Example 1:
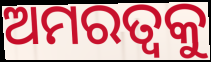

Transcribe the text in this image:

ଅମରତ୍ୱକୁ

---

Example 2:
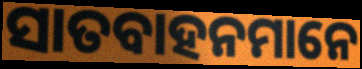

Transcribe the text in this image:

ସାତବାହନମାନେ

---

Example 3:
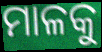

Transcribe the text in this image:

ମାଳକୁ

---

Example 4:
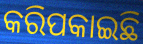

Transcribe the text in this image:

କରିପକାଇଛି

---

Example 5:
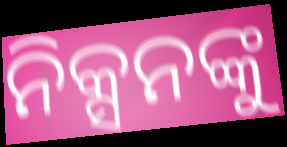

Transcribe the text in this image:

ନିକ୍ସନଙ୍କୁ